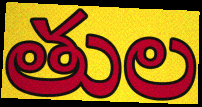
తుల